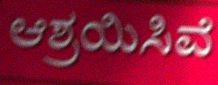
ಆಶ್ರಯಿಸಿವೆ